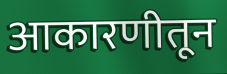
आकारणीतून